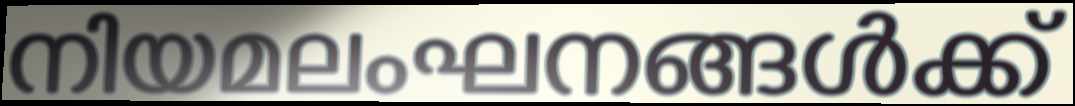
നിയമലംഘനങ്ങൾക്ക്